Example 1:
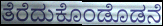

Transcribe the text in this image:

ತೆರೆದುಕೊಂಡೊಡನೆ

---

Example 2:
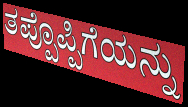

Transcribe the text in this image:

ತಪ್ಪೊಪ್ಪಿಗೆಯನ್ನು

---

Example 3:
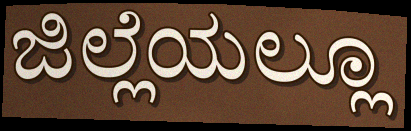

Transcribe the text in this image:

ಜಿಲ್ಲೆಯಲ್ಲೂ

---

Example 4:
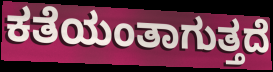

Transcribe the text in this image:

ಕತೆಯಂತಾಗುತ್ತದೆ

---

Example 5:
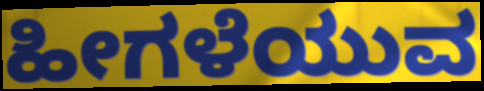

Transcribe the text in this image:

ಹೀಗಳೆಯುವ